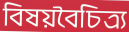
বিষয়বৈচিত্র্য